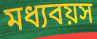
মধ্যবয়স